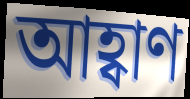
আহ্বাণ